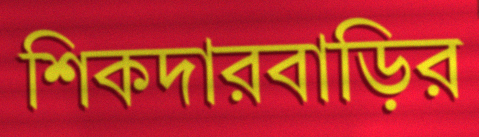
শিকদারবাড়ির